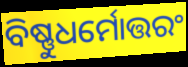
ବିଷ୍ଣୁଧର୍ମୋତ୍ତରଂ